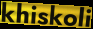
khiskoli